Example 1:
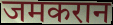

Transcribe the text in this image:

जमकरान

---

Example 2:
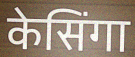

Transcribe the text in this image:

केसिंगा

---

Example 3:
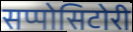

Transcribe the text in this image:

सप्पोसिटोरी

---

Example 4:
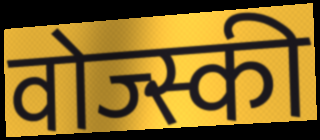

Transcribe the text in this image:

वोज्स्की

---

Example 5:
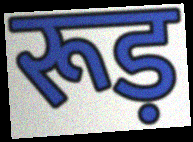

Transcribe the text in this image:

रूड़